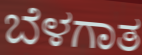
ಬೆಳಗಾತ